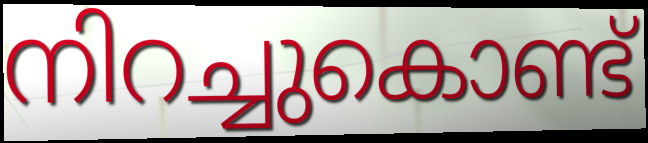
നിറച്ചുകൊണ്ട്